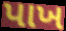
પાખ